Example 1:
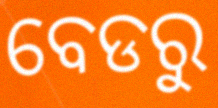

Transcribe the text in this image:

ବେଡରୁ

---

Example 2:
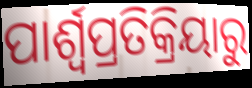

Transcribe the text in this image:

ପାର୍ଶ୍ୱପ୍ରତିକ୍ରିୟାରୁ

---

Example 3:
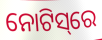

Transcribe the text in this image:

ନୋଟିସ୍‌ରେ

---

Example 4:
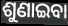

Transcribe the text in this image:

ଶୁଣାଇବା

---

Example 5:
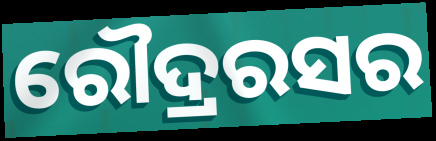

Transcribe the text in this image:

ରୌଦ୍ରରସର